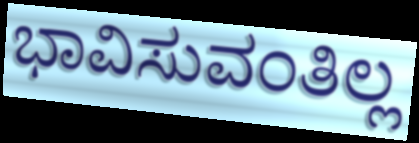
ಭಾವಿಸುವಂತಿಲ್ಲ